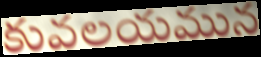
కువలయమున